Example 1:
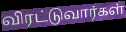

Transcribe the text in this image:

விரட்டுவார்கள்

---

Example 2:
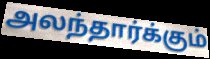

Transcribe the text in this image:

அலந்தார்க்கும்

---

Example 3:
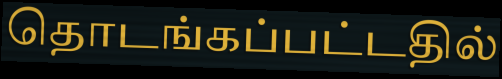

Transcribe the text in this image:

தொடங்கப்பட்டதில்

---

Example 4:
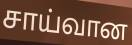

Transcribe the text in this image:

சாய்வான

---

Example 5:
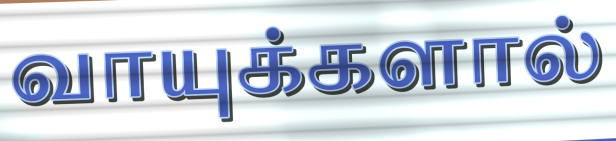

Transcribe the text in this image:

வாயுக்களால்